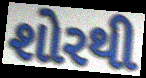
શોરથી